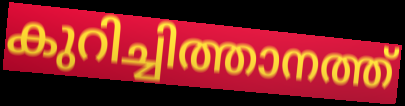
കുറിച്ചിത്താനത്ത്